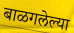
बाळगलेल्या